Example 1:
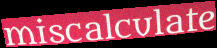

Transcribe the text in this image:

miscalculate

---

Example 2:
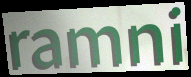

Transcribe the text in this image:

ramni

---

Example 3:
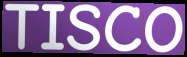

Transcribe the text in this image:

TISCO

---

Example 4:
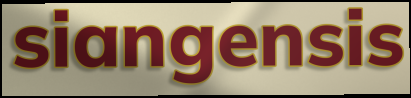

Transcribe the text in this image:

siangensis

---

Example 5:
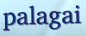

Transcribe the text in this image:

palagai